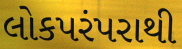
લોકપરંપરાથી